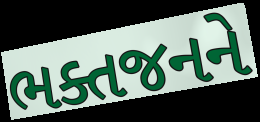
ભક્તજનને